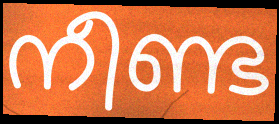
നീണ്ട